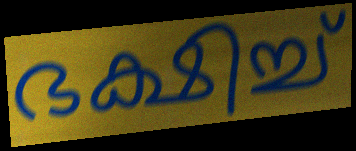
ഭക്ഷിച്ച്